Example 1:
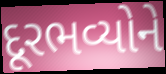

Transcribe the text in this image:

દૂરભવ્યોને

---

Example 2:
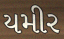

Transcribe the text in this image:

યમીર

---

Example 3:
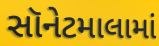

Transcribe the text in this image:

સૉનેટમાલામાં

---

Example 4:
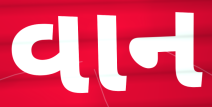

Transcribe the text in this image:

વાન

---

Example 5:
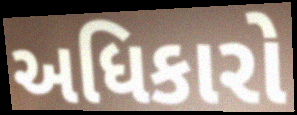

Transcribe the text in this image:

અધિકારો